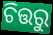
ଚିତ୍ତରୁ